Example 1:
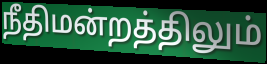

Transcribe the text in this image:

நீதிமன்றத்திலும்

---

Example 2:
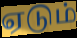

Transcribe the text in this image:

ஏடும்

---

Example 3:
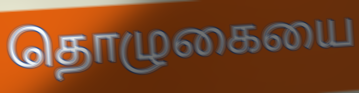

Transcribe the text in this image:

தொழுகையை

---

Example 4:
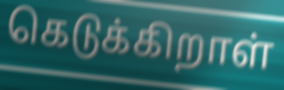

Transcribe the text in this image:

கெடுக்கிறாள்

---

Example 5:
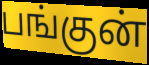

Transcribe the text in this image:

பங்குன்